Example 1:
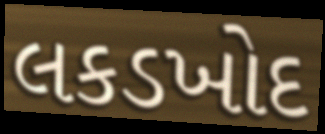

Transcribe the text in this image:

લકડખોદ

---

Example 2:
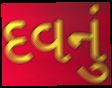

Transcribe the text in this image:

દવનું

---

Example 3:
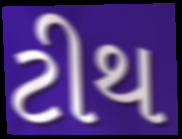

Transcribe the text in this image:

ટીથ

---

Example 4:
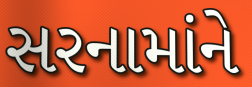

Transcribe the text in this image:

સરનામાંને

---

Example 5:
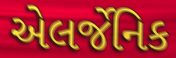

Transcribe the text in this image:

એલર્જેનિક